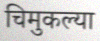
चिमुकल्या